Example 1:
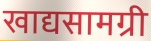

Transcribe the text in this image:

खाद्यसामग्री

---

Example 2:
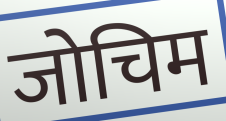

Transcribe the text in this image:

जोचिम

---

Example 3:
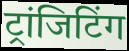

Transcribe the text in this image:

ट्रांजिटिंग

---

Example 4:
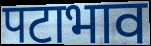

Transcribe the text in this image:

पटाभाव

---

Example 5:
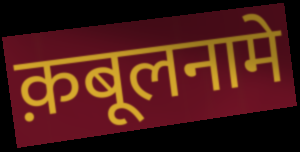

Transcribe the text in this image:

क़बूलनामे